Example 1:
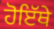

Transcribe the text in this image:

ਹੋਇੱਥੇ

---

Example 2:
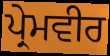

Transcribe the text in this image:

ਪ੍ਰੇਮਵੀਰ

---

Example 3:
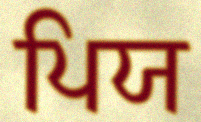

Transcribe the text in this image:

ਪਿਯ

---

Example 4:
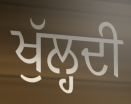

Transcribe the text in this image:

ਖੁੱਲ੍ਹਦੀ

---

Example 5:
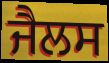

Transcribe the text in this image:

ਜੈਲਸ